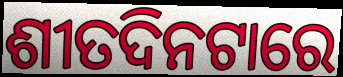
ଶୀତଦିନଟାରେ